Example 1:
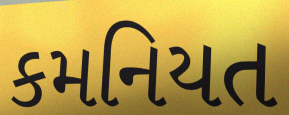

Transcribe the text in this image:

કમનિયત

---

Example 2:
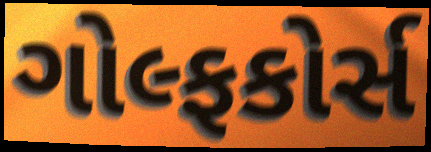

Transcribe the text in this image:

ગોલ્ફકોર્સ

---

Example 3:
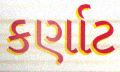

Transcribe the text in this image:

કર્ણાટ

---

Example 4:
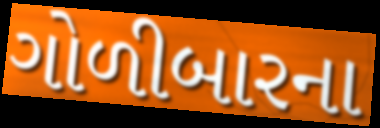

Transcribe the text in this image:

ગોળીબારના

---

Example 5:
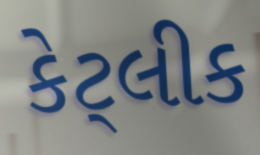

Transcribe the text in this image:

કેટ્લીક